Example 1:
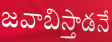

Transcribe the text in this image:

జవాబిస్తాడనే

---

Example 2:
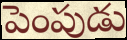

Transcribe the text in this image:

పెంపుడు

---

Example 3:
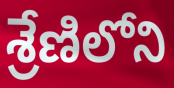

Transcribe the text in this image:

శ్రేణిలోని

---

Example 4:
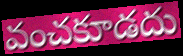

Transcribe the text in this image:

వంచకూడదు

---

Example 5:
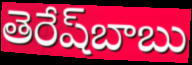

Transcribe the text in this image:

తెరేష్‌బాబు